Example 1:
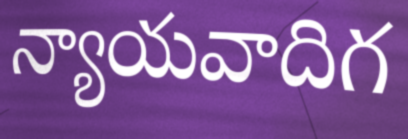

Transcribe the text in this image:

న్యాయవాదిగ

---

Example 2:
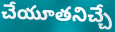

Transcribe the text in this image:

చేయూతనిచ్చే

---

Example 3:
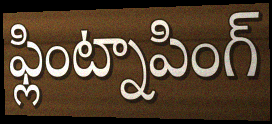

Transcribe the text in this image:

ఫ్లింట్నాపింగ్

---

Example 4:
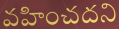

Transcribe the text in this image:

వహించదని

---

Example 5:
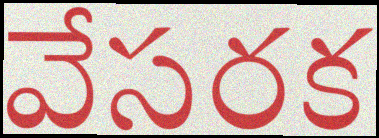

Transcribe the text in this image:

వేసరక